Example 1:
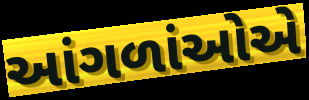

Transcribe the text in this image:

આંગળાંઓએ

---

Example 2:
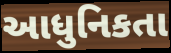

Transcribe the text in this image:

આધુનિકતા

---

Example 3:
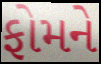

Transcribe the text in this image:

ફોમને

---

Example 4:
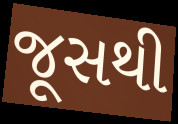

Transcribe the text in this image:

જૂસથી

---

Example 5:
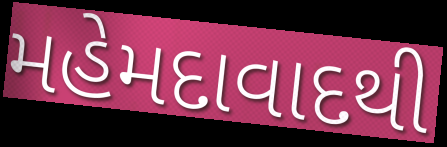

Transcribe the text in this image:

મહેમદાવાદથી